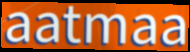
aatmaa